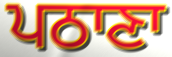
ਪਠਾਣਾ